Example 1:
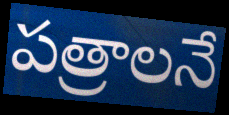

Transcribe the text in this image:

పత్రాలనే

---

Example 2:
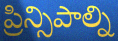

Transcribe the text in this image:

ప్రిన్సిపాల్ని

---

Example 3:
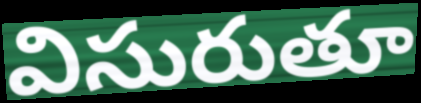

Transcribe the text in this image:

విసురుతూ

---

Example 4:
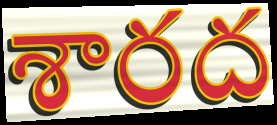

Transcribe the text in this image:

శారద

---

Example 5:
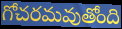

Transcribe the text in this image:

గోచరమవుతోంది